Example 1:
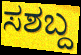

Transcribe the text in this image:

ಸಶಬ್ದ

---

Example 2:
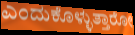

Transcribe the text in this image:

ಎಂದುಕೊಳ್ಳುತ್ತಾರೋ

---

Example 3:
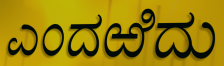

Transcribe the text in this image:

ಎಂದಱಿದು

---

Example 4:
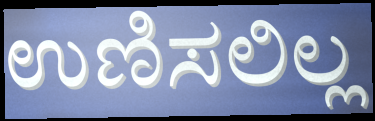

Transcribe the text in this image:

ಉಣಿಸಲಿಲ್ಲ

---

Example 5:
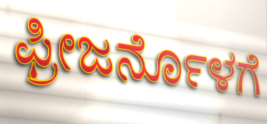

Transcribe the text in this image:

ಫ್ರೀಜರ್ನೊಳಗೆ